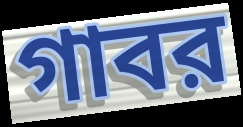
গাবর